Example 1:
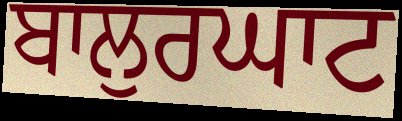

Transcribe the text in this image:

ਬਾਲੁਰਘਾਟ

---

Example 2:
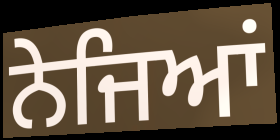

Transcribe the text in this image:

ਨੇਜਿਆਂ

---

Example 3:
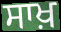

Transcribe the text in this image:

ਸਾਖ਼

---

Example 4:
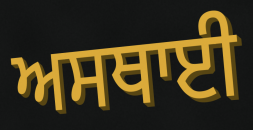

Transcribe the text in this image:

ਅਸਥਾਈ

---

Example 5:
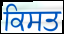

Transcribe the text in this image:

ਕਿਸਤ